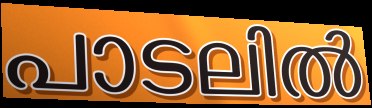
പാടലിൽ